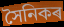
সৈনিকৰ